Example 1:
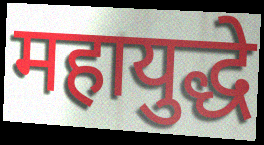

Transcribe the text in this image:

महायुद्धे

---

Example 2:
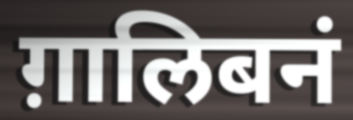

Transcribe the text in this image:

ग़ालिबनं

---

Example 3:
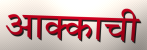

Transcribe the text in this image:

आक्काची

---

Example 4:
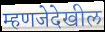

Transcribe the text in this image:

म्हणजेदेखील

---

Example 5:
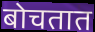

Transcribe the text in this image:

बोचतात